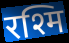
रश्मि